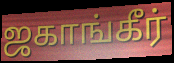
ஜகாங்கீர்